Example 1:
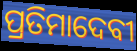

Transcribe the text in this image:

ପ୍ରତିମାଦେବୀ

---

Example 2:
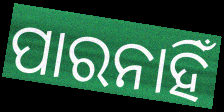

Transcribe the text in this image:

ପାରନାହିଁ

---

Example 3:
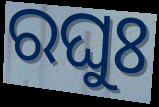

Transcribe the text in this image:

ରଘୁଃ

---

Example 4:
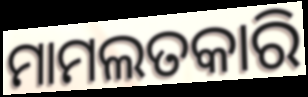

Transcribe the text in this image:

ମାମଲତକାରି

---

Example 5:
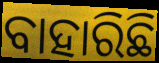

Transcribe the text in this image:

ବାହାରିଛି